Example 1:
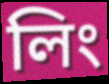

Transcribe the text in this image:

লিং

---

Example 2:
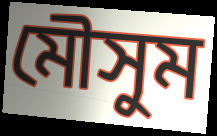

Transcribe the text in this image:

মৌসুম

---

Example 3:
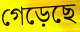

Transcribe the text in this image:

গেড়েছে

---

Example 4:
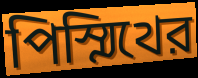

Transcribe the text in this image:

পিস্মিথের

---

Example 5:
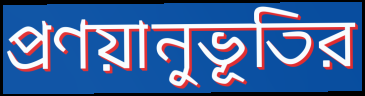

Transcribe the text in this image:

প্রণয়ানুভূতির